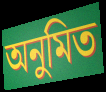
অনুমিত